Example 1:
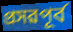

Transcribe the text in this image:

প্ৰসৱপূৰ্ব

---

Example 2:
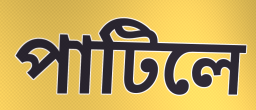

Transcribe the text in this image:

পাটিলে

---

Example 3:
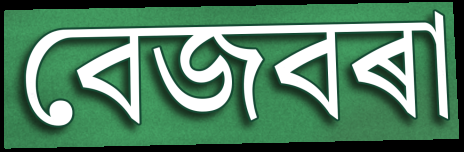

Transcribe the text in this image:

বেজবৰা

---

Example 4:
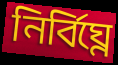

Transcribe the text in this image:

নিৰ্বিঘ্নে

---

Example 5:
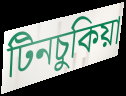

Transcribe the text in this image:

টিনচুকিয়া